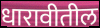
धारावीतील